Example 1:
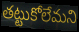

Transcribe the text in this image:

తట్టుకోలేమని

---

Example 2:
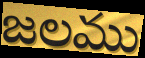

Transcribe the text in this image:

జలము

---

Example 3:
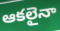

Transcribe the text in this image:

ఆకలైనా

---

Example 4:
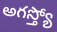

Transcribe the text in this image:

అగస్త్యో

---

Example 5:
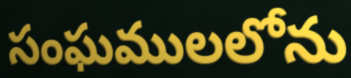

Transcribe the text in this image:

సంఘములలోను